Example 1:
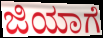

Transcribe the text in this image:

ಜಿಯಾಗೆ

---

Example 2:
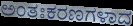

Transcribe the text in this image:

ಅಂತಃಕರಣಗಳಾದ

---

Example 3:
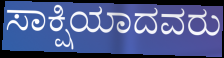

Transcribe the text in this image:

ಸಾಕ್ಷಿಯಾದವರು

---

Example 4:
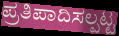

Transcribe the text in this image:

ಪ್ರತಿಪಾದಿಸಲ್ಪಟ್ಟ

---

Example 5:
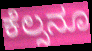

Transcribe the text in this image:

ಕೆಲ್ಸನೂ